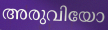
അരുവിയോ